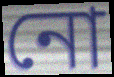
নো